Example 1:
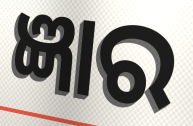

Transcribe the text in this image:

ଜ୍ଞାର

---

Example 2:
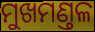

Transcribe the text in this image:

ମୁଖମଣ୍ତଳ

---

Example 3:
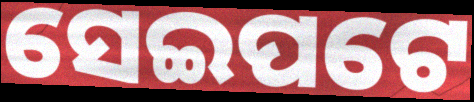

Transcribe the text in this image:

ସେଇପଟେ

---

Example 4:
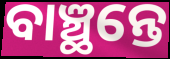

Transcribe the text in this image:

ବାଞ୍ଛନ୍ତେ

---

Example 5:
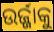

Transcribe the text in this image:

ଉର୍ଜ୍ଜାକୁ